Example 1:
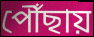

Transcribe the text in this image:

পৌঁছায়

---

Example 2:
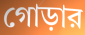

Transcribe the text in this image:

গোড়ার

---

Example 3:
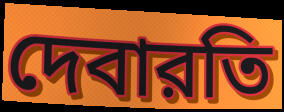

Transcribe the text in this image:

দেবারতি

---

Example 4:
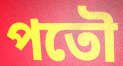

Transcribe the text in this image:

পতৌ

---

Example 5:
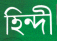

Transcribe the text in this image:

হিন্দী